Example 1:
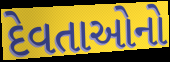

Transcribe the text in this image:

દેવતાઓનો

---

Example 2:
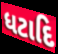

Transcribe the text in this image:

ધટાદિ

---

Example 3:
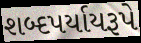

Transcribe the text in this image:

શબ્દપર્યાયરૂપે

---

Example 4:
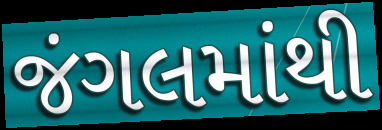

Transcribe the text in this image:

જંગલમાંથી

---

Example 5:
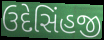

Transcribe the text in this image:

ઉદેસિંહજી